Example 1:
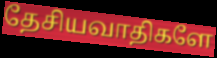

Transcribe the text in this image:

தேசியவாதிகளே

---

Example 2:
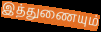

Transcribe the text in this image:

இத்துணையும்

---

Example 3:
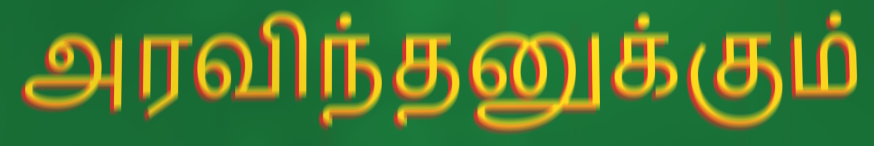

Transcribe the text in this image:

அரவிந்தனுக்கும்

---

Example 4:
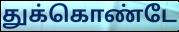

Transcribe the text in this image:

துக்கொண்டே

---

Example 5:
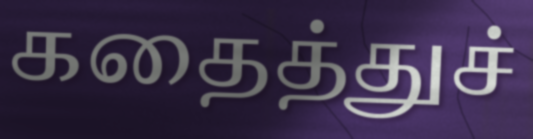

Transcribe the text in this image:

கதைத்துச்